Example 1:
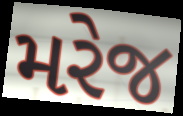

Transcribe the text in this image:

મરેજ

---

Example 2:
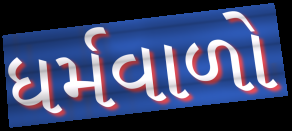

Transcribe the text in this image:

ધર્મવાળો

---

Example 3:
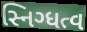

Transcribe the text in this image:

સ્નિગ્ધત્વ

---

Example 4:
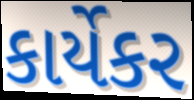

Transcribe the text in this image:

કાર્યેકર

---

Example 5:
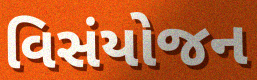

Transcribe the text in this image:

વિસંયોજન